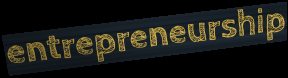
entrepreneurship